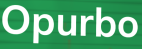
Opurbo